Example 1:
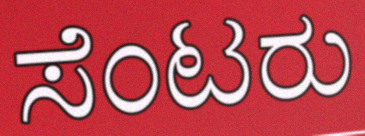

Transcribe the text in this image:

ಸೆಂಟರು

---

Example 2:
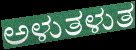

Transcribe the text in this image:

ಅಳುತಳುತ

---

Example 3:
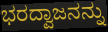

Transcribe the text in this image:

ಭರದ್ವಾಜನನ್ನು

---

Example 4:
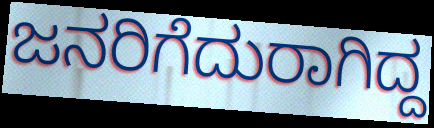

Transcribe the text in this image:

ಜನರಿಗೆದುರಾಗಿದ್ದ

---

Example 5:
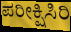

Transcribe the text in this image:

ಪರೀಕ್ಷಿಸಿರಿ